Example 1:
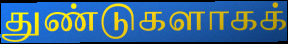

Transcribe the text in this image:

துண்டுகளாகக்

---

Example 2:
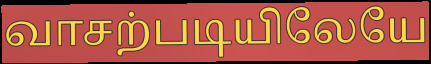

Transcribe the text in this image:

வாசற்படியிலேயே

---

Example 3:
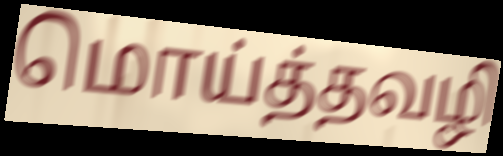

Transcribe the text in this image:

மொய்த்தவழி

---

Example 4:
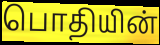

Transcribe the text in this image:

பொதியின்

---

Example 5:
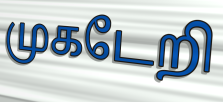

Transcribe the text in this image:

முகடேறி